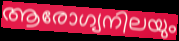
ആരോഗ്യനിലയും